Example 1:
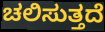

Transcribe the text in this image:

ಚಲಿಸುತ್ತದೆ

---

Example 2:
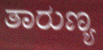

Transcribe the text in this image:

ತಾರುಣ್ಯ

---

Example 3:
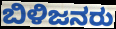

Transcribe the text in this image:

ಬಿಳಿಜನರು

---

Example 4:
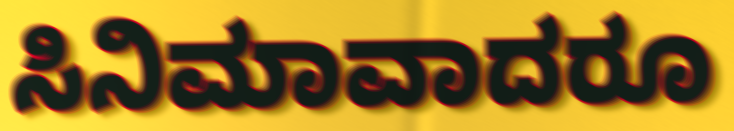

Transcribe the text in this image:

ಸಿನಿಮಾವಾದರೂ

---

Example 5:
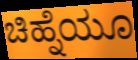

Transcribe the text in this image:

ಚಿಹ್ನೆಯೂ